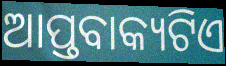
ଆପ୍ତବାକ୍ୟଟିଏ